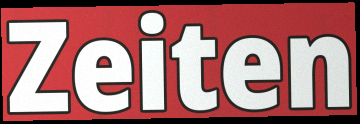
Zeiten